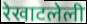
रेखाटलेली